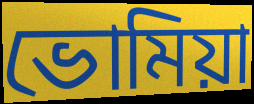
ভোমিয়া